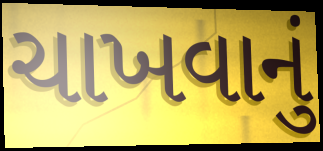
ચાખવાનું